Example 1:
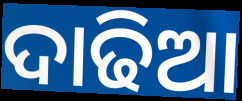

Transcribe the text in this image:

ଦାଢିଆ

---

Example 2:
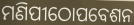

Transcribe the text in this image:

ମଣିପୀଠୋପବେଶନ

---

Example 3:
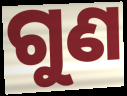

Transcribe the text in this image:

ଗୁଣ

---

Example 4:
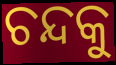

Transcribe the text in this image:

ଚନ୍ଦକୁ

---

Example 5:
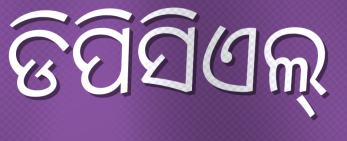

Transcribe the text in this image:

ଡିପିସିଏଲ୍